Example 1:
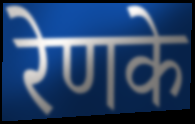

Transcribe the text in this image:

रेणके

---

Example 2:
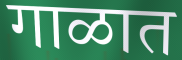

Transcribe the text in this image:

गाळात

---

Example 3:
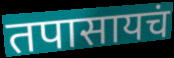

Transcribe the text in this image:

तपासायचं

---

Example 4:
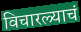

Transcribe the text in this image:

विचारल्याचं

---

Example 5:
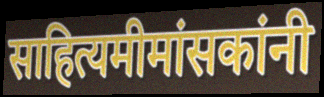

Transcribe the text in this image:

साहित्यमीमांसकांनी